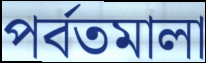
পর্বতমালা